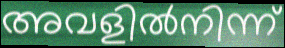
അവളിൽനിന്ന്